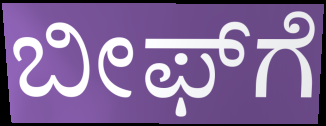
ಬೀಫ್‌ಗೆ